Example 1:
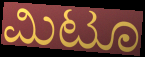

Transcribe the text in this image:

ಮಿಟೂ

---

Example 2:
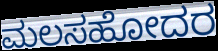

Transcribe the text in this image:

ಮಲಸಹೋದರ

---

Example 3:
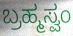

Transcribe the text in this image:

ಬ್ರಹ್ಮಸ್ವಂ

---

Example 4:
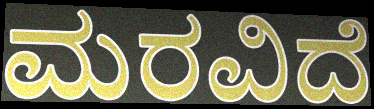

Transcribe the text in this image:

ಮರವಿದೆ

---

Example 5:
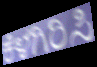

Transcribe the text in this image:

ಕೆಳಗಿರಿಸಿ